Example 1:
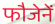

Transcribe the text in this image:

फौजेनें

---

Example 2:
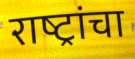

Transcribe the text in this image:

राष्ट्रांचा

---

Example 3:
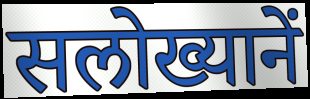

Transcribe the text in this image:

सलोख्यानें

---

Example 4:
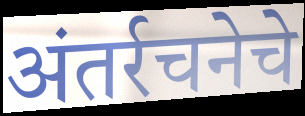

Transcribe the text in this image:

अंतर्रचनेचे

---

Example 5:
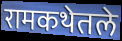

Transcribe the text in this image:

रामकथेतले